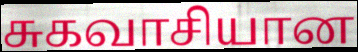
சுகவாசியான